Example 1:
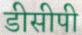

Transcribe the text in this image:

डीसीपी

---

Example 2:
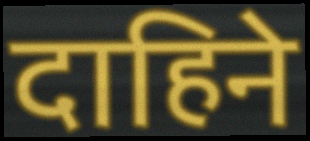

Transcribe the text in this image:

दाहिने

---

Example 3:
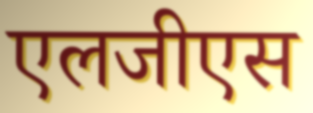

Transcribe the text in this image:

एलजीएस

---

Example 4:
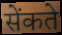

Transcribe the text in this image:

सेंकते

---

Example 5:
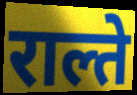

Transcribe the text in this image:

राल्ते